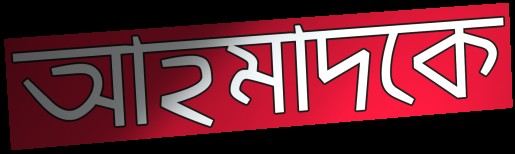
আহমাদকে